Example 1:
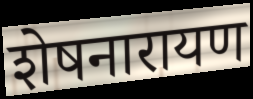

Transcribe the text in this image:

शेषनारायण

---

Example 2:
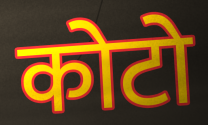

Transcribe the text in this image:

कोटो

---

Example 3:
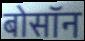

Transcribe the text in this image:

बोसॉन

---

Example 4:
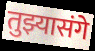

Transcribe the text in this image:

तुझ्यासंगे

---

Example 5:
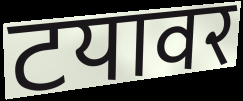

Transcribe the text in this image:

टयावर